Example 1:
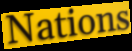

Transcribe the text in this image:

Nations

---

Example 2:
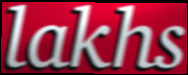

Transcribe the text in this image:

lakhs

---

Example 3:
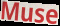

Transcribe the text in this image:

Muse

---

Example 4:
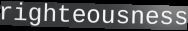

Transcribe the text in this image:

righteousness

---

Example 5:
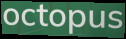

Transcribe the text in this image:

octopus